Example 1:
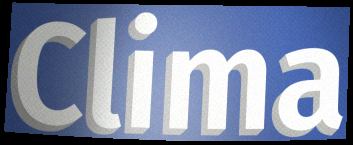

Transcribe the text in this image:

Clima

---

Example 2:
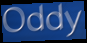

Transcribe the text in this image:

Oddy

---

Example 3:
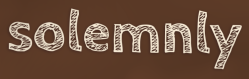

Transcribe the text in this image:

solemnly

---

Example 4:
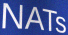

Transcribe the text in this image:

NATs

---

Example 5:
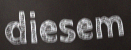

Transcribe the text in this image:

diesem